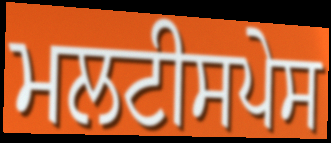
ਮਲਟੀਸਪੇਸ